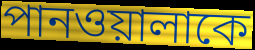
পানওয়ালাকে